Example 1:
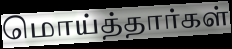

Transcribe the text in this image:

மொய்த்தார்கள்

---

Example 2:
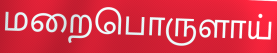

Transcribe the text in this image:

மறைபொருளாய்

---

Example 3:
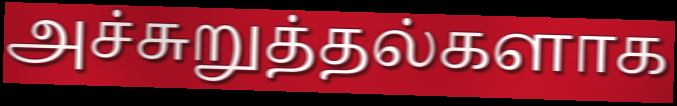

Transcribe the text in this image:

அச்சுறுத்தல்களாக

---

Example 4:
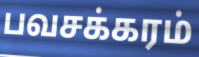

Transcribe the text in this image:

பவசக்கரம்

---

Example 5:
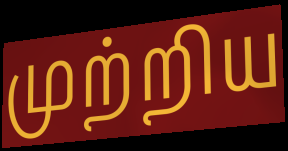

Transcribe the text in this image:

முற்றிய